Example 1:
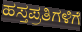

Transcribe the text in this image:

ಹಸ್ತಪ್ರತಿಗಳಿಗೆ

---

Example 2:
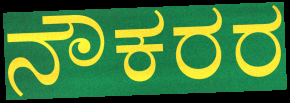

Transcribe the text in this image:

ನೌಕರರ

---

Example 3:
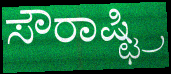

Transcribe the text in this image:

ಸೌರಾಷ್ಟ್ರಿ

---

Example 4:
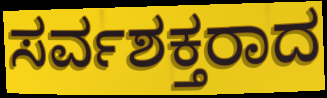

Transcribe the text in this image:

ಸರ್ವಶಕ್ತರಾದ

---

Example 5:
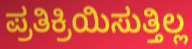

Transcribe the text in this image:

ಪ್ರತಿಕ್ರಿಯಿಸುತ್ತಿಲ್ಲ